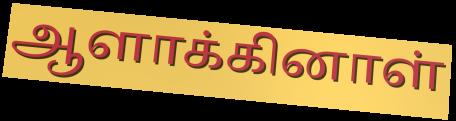
ஆளாக்கினாள்